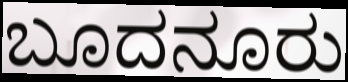
ಬೂದನೂರು